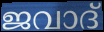
ജവാദ്